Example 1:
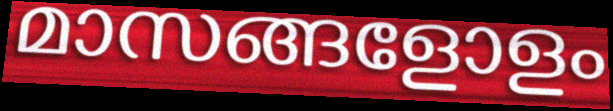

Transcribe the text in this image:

മാസങ്ങളോളം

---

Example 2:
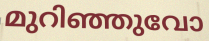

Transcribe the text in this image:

മുറിഞ്ഞുവോ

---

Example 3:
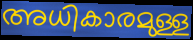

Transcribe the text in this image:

അധികാരമുള്ള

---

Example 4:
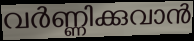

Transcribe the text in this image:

വർണ്ണിക്കുവാൻ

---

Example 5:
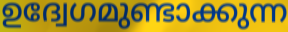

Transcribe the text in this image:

ഉദ്വേഗമുണ്ടാക്കുന്ന